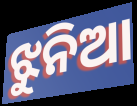
ଝୁନିଆ